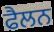
ਫੈਲਨ